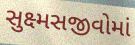
સુક્ષ્મસજીવોમાં